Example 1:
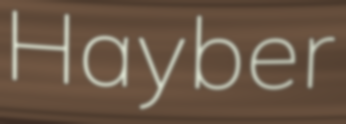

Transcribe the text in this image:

Hayber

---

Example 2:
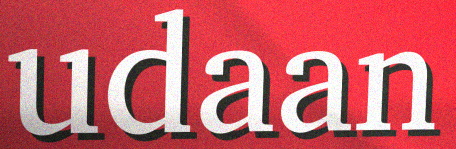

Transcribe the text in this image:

udaan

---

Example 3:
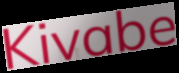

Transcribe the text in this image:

Kivabe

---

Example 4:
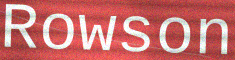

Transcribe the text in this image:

Rowson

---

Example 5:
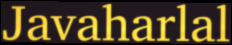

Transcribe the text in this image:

Javaharlal